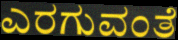
ಎರಗುವಂತೆ